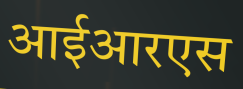
आईआरएस